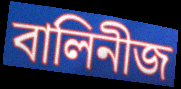
বালিনীজ